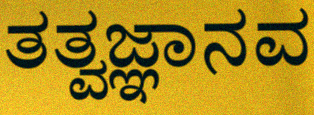
ತತ್ವಜ್ಞಾನವ